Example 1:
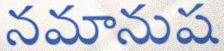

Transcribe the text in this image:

నమానుష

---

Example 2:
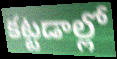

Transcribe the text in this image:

కట్టడాల్లో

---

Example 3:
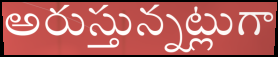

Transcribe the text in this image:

అరుస్తున్నట్లుగా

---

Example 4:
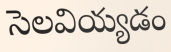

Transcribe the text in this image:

సెలవియ్యడం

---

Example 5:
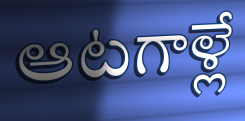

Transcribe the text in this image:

ఆటగాళ్లే